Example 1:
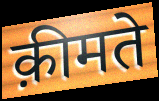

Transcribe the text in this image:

क़ीमते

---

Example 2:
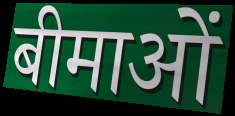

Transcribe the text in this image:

बीमाओं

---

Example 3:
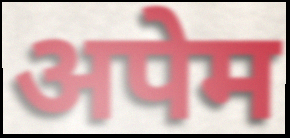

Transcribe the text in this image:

अपेम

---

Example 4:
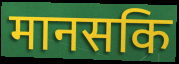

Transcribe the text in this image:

मानसकि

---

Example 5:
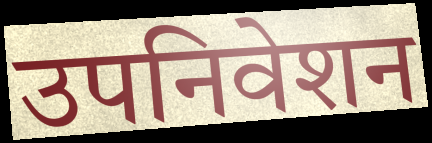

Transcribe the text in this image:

उपनिवेशन